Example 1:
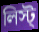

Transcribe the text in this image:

লিস্ট্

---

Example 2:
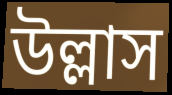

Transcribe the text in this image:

উল্লাস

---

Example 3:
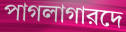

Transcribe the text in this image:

পাগলাগারদে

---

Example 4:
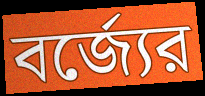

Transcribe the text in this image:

বর্জ্যের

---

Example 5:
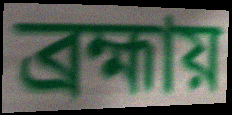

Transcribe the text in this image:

ব্রহ্মায়